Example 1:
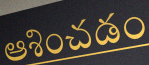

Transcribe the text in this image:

ఆశించడం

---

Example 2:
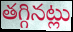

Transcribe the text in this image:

తగ్గినట్లు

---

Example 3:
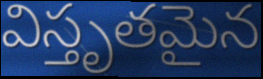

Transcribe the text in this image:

విస్తృతమైన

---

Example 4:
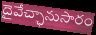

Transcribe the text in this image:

దైవేచ్ఛానుసారం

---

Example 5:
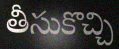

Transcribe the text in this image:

తీసుకొచ్చి